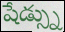
షేడ్స్ను